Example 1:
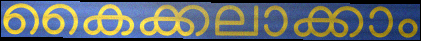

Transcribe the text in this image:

കൈക്കലാക്കാം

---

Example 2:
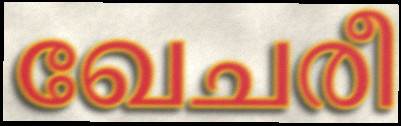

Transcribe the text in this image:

ഖേചരീ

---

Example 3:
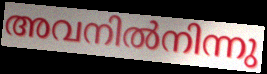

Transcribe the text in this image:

അവനിൽനിന്നു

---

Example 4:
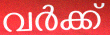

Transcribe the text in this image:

വർക്ക്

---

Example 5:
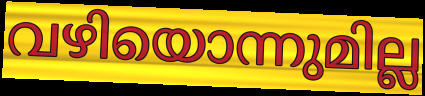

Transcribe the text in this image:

വഴിയൊന്നുമില്ല